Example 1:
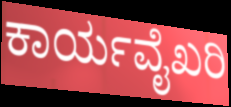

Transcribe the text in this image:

ಕಾರ್ಯವೈಖರಿ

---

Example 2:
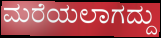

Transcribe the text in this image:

ಮರೆಯಲಾಗದ್ದು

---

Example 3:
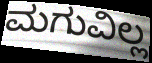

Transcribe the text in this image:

ಮಗುವಿಲ್ಲ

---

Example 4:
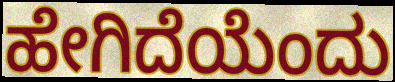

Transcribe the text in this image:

ಹೇಗಿದೆಯೆಂದು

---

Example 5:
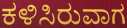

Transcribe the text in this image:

ಕಳಿಸಿರುವಾಗ